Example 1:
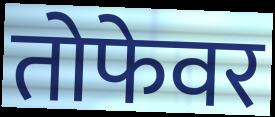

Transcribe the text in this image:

तोफेवर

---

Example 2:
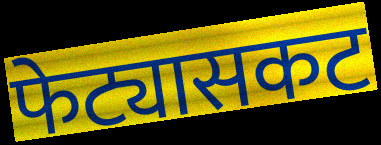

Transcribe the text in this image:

फेट्यासकट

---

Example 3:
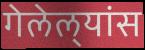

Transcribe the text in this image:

गेलेल्यांस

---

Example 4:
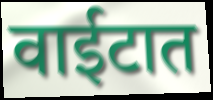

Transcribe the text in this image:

वाईटात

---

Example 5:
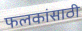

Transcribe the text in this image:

फलकांसाठी